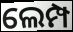
ଲେମ୍ପ